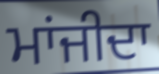
ਮਾਂਜੀਦਾ